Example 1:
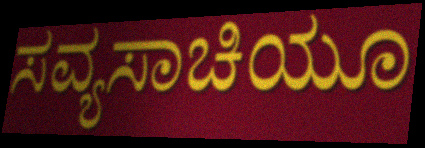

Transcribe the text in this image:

ಸವ್ಯಸಾಚಿಯೂ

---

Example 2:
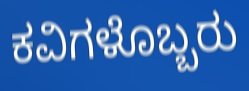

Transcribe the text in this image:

ಕವಿಗಳೊಬ್ಬರು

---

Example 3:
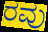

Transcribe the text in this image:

ರವು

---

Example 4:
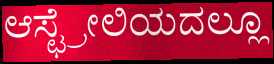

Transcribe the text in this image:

ಆಸ್ಟ್ರೇಲಿಯದಲ್ಲೂ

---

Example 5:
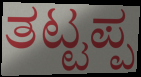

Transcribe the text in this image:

ತಟ್ಟಪ್ಪ